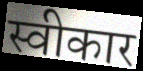
स्वीकार